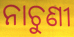
ନାଚୁଣୀ